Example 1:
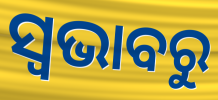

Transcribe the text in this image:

ସ୍ଵଭାବରୁ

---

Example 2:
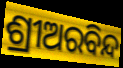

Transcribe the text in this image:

ଶ୍ରୀଅରବିନ୍ଦ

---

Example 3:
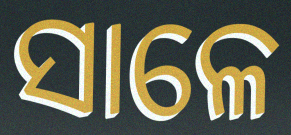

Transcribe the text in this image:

ସାଳେ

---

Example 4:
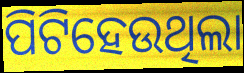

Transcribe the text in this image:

ପିଟିହେଉଥିଲା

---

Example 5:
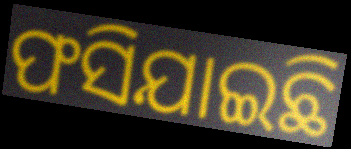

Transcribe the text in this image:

ଫସିଯାଇଛି